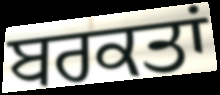
ਬਰਕਤਾਂ